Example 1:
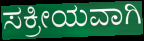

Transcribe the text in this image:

ಸಕ್ರೀಯವಾಗಿ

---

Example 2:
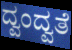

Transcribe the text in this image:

ದ್ವಂದ್ವತೆ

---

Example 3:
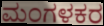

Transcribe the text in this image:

ಮಂಗಳಕರ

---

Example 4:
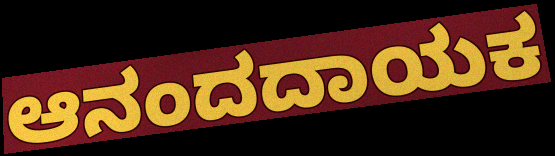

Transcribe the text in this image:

ಆನಂದದಾಯಕ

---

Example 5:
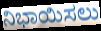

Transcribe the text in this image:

ನಿಭಾಯಿಸಲು